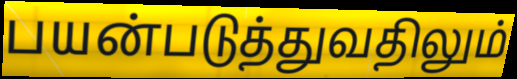
பயன்படுத்துவதிலும்